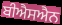
ਬੀਐਸਐਨ